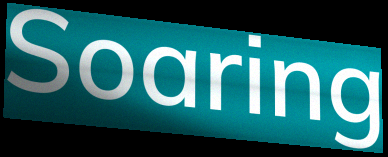
Soaring